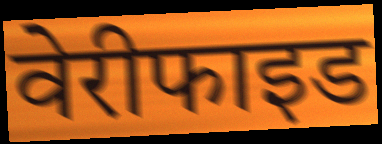
वेरीफाइड